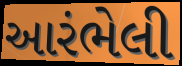
આરંભેલી